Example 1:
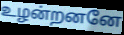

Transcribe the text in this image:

உழன்றனனே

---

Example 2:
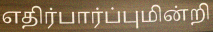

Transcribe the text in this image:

எதிர்பார்ப்புமின்றி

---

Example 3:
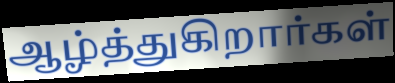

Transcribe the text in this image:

ஆழ்த்துகிறார்கள்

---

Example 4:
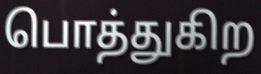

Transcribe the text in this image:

பொத்துகிற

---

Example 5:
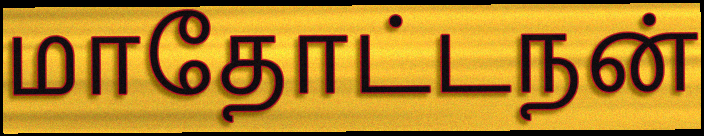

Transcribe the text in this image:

மாதோட்டநன்